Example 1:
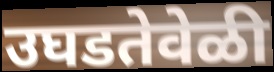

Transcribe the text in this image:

उघडतेवेळी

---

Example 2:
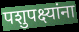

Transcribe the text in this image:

पशुपक्ष्यांना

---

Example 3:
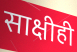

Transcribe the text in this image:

साक्षीही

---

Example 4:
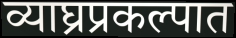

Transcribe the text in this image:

व्याघ्रप्रकल्पात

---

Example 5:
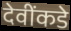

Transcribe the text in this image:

देवींकडे